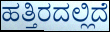
ಹತ್ತಿರದಲ್ಲಿದೆ